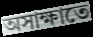
অসাক্ষাতে